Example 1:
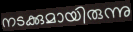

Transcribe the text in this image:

നടക്കുമായിരുന്നു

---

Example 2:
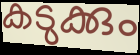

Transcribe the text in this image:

കടുക്കും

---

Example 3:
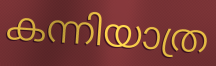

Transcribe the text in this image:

കന്നിയാത്ര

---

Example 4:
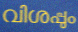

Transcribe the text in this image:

വിശപ്പും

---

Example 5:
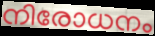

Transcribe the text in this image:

നിരോധനം